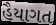
હૈયાગત